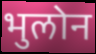
भुलोन